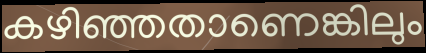
കഴിഞ്ഞതാണെങ്കിലും